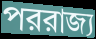
পররাজ্য